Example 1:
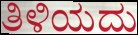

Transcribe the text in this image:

ತಿಳಿಯದು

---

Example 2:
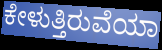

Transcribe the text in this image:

ಕೇಳುತ್ತಿರುವೆಯಾ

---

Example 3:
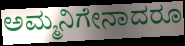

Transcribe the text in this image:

ಅಮ್ಮನಿಗೇನಾದರೂ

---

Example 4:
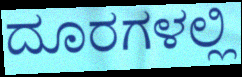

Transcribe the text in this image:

ದೂರಗಳಲ್ಲಿ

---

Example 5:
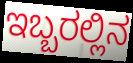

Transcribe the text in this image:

ಇಬ್ಬರಲ್ಲಿನ